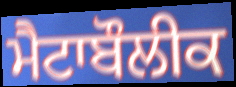
ਮੈਟਾਬੌਲੀਕ